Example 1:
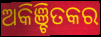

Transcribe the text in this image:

ଅକିଞ୍ଚିତକର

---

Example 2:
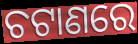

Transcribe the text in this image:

ଚଟାଣରେ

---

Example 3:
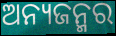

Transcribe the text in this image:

ଅନ୍ୟଜନ୍ମର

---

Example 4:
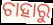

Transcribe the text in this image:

ଚାହାରୁ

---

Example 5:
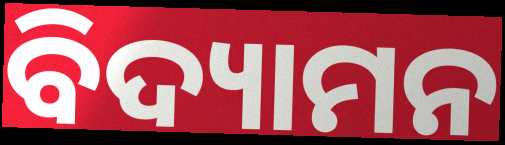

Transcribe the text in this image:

ବିଦ୍ୟାମନ